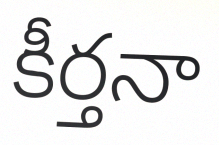
కీర్తనా